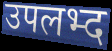
उपलभ्द